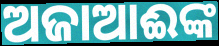
ଅଜାଆଈଙ୍କ